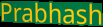
Prabhash